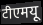
टीएमयू